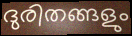
ദുരിതങ്ങളും